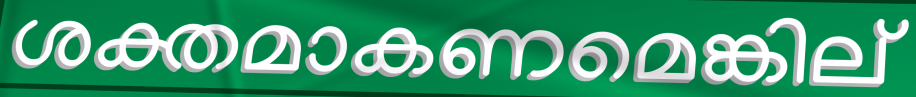
ശക്തമാകണമെങ്കില്